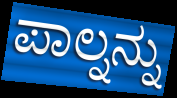
ಪಾಲ್ನನ್ನು